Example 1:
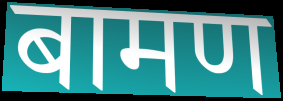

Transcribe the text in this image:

बामण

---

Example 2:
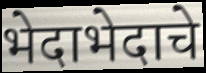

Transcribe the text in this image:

भेदाभेदाचे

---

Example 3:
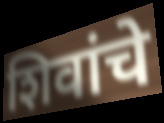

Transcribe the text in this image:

शिवांचे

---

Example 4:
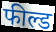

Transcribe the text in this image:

फील्ड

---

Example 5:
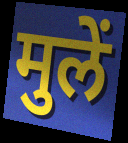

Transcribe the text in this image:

मुलें